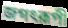
জগৎরূপী